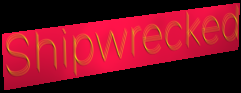
Shipwrecked